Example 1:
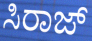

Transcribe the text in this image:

ಸಿರಾಜ್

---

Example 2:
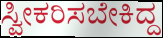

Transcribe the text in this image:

ಸ್ವೀಕರಿಸಬೇಕಿದ್ದ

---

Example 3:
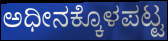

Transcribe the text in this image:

ಅಧೀನಕ್ಕೊಳಪಟ್ಟ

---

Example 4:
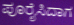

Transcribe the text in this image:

ಪೂರೈಸಿದಾಗ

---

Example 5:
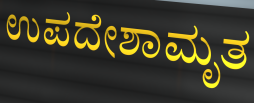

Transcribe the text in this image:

ಉಪದೇಶಾಮೃತ